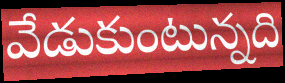
వేడుకుంటున్నది